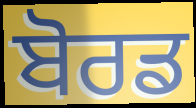
ਬੋਰਡ